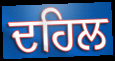
ਦਹਿਲ